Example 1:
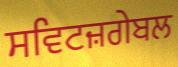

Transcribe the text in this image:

ਸਵਿਟਜ਼ਗੇਬਲ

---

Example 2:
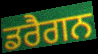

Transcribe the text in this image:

ਡਰੈਗਨ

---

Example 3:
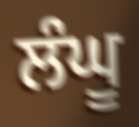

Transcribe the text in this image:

ਲੰਘੂ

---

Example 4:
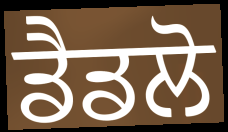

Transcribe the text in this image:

ਡੈਡਲੋ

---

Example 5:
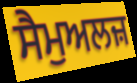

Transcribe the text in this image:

ਸੈਮੁਅਲਜ਼